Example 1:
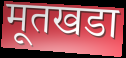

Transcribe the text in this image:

मूतखडा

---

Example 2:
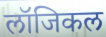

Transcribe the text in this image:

लॉजिकल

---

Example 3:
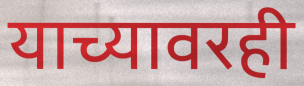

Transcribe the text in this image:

याच्यावरही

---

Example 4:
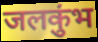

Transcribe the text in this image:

जलकुंभ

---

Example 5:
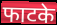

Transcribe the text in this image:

फाटके